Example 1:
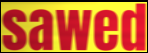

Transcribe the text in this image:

sawed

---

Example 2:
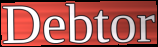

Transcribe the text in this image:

Debtor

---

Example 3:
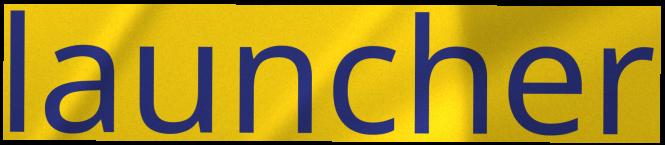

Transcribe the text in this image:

launcher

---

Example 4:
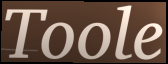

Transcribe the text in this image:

Toole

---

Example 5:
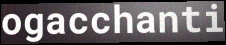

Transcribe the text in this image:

ogacchanti